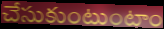
చేసుకుంటుంటాం